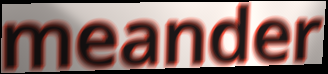
meander